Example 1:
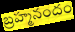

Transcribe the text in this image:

బ్రహ్మనందం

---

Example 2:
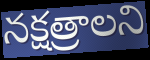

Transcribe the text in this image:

నక్షత్రాలని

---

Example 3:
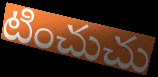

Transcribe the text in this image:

టించుచు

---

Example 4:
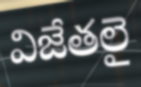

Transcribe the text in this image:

విజేతలై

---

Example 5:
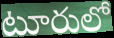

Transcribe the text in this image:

టూరులో